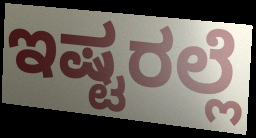
ಇಷ್ಟರಲ್ಲೆ